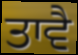
ਤਾਵੈ